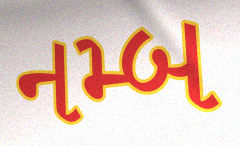
નમ્બ